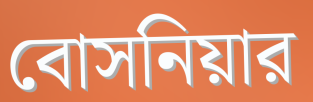
বোসনিয়ার